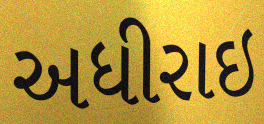
અધીરાઇ